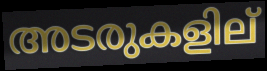
അടരുകളില്